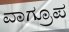
ವಾಗ್ರೂಪ